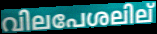
വിലപേശലില്